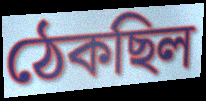
ঠেকছিল